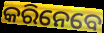
କରିନେବେ